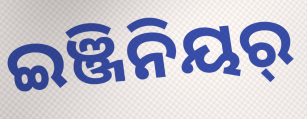
ଇଞ୍ଜିନିୟର୍